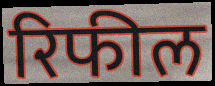
रिफील